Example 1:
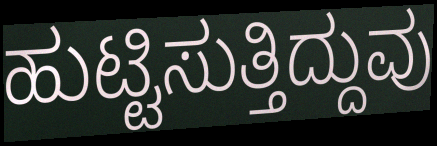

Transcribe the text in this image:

ಹುಟ್ಟಿಸುತ್ತಿದ್ದುವು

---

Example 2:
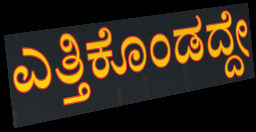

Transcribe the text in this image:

ಎತ್ತಿಕೊಂಡದ್ದೇ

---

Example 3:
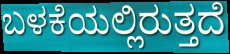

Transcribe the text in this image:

ಬಳಕೆಯಲ್ಲಿರುತ್ತದೆ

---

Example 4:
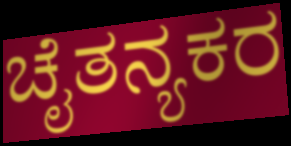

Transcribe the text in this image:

ಚೈತನ್ಯಕರ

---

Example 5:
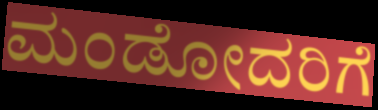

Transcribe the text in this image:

ಮಂಡೋದರಿಗೆ